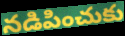
నడిపించుకు